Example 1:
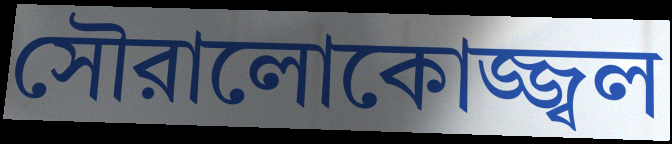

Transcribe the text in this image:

সৌরালোকোজ্জ্বল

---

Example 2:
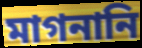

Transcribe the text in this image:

মাগনানি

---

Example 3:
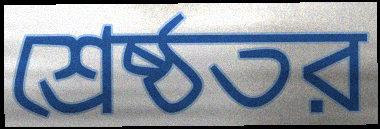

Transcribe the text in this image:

শ্রেষ্ঠতর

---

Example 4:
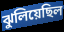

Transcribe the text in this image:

ঝুলিয়েছিল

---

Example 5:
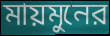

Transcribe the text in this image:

মায়মুনের